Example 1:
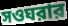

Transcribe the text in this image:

সওঘরার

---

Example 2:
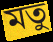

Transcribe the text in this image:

মতু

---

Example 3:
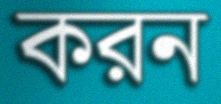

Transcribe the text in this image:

করন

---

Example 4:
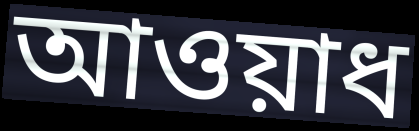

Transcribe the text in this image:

আওয়াধ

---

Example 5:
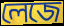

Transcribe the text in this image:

লেজে